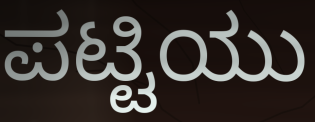
ಪಟ್ಟಿಯು